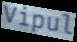
Vipul